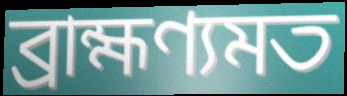
ব্রাহ্মণ্যমত